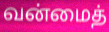
வன்மைத்